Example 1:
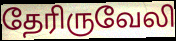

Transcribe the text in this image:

தேரிருவேலி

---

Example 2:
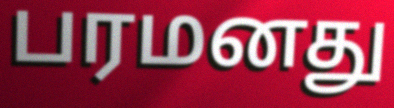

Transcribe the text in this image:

பரமனது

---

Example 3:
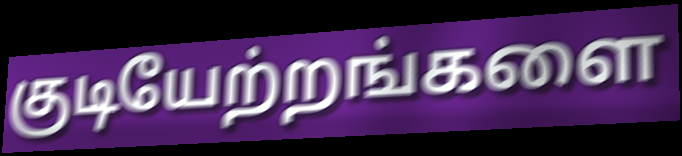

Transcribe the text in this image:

குடியேற்றங்களை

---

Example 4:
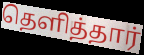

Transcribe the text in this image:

தெளித்தார்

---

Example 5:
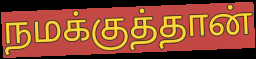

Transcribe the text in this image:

நமக்குத்தான்